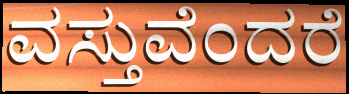
ವಸ್ತುವೆಂದರೆ